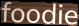
foodie